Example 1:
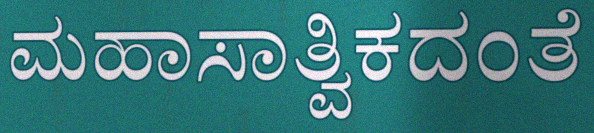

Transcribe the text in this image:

ಮಹಾಸಾತ್ವಿಕದಂತೆ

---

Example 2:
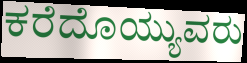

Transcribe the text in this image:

ಕರೆದೊಯ್ಯುವರು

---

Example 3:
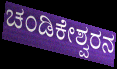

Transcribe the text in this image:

ಚಂಡಿಕೇಶ್ವರನ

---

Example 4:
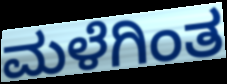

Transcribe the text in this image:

ಮಳೆಗಿಂತ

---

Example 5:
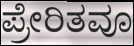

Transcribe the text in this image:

ಪ್ರೇರಿತವೂ